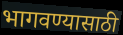
भागवण्यासाठी